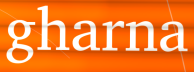
gharna